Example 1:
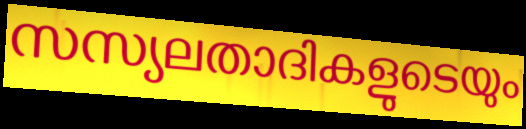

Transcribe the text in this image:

സസ്യലതാദികളുടെയും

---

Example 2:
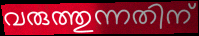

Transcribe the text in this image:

വരുത്തുന്നതിന്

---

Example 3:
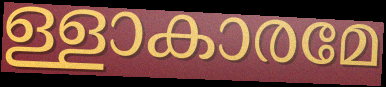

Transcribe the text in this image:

ള്ളാകാരമേ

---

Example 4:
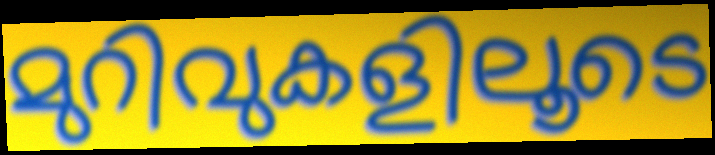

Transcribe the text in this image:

മുറിവുകളിലൂടെ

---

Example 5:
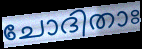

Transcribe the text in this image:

ചോദിതാഃ